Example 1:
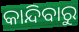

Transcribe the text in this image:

କାନ୍ଦିବାରୁ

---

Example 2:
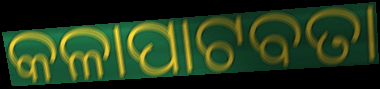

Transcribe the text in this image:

କଳାପାଟବତା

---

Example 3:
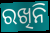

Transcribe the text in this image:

ରଖିନି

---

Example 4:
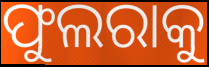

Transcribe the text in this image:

ଫୁଲରାକୁ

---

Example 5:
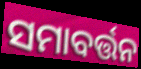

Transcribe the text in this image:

ସମାବର୍ତ୍ତନ